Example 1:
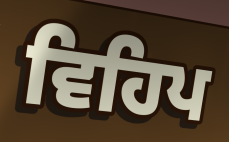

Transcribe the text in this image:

ਵਿਹਿਪ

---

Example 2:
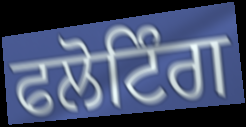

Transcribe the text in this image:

ਫਲੋਟਿੰਗ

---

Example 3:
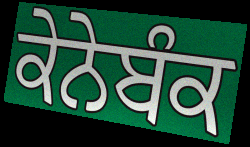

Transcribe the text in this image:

ਕੇਨੇਬੰਕ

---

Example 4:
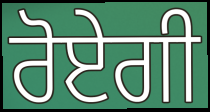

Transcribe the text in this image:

ਰੋਏਗੀ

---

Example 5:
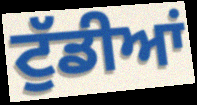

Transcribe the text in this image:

ਟੁੱਡੀਆਂ